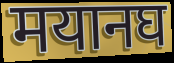
मयानघ